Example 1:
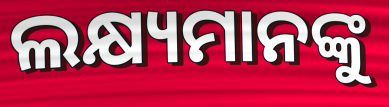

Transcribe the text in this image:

ଲକ୍ଷ୍ୟମାନଙ୍କୁ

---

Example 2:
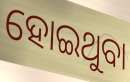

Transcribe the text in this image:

ହୋଇଥୁବା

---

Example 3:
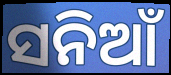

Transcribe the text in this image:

ସନିଆଁ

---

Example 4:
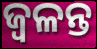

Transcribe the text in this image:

ଜ୍ଵଳନ୍ତ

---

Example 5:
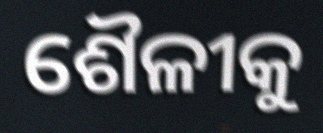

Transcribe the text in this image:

ଶୈଳୀକୁ